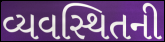
વ્યવસ્થિતની